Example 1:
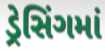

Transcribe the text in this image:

ડ્રેસિંગમાં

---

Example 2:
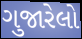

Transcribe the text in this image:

ગુજારેલો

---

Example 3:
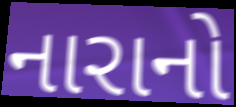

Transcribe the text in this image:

નારાનો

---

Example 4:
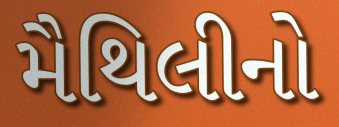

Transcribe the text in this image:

મૈથિલીનો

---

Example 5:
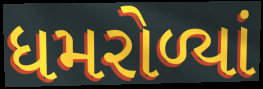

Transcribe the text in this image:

ધમરોળ્યાં